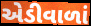
એડીવાળાં